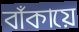
বাঁকায়ে